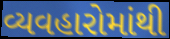
વ્યવહારોમાંથી